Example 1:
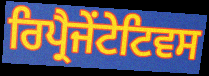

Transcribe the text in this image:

ਰਿਪ੍ਰੈਜੇਂਟੇਟਿਵਸ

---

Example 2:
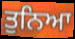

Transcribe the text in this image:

ਤੁਨਿਆ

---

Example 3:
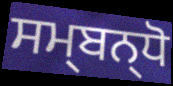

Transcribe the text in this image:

ਸਮ੍ਬਨ੍ਧੋ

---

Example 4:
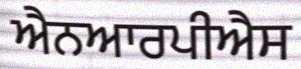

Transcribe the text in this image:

ਐਨਆਰਪੀਐਸ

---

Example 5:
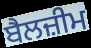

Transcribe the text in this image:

ਬੈਲਜ਼ੀਮ